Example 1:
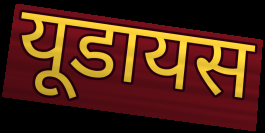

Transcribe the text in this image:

यूडायस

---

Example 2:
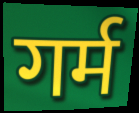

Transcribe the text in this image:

गर्म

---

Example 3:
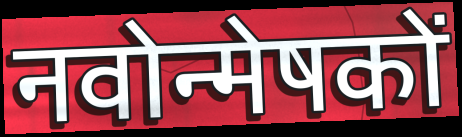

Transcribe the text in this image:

नवोन्मेषकों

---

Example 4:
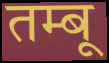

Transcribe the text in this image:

तम्बू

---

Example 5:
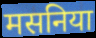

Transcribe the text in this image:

मसनिया